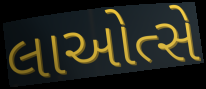
લાઓત્સે